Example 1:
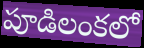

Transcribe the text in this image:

పూడిలంకలో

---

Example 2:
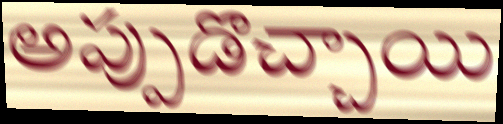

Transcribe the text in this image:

అప్పుడొచ్చాయి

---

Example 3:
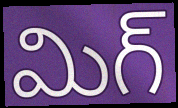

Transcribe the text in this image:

మిగ్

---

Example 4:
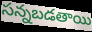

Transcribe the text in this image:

సన్నబడతాయి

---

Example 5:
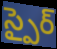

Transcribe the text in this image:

స్పైర్